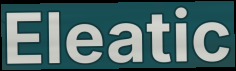
Eleatic